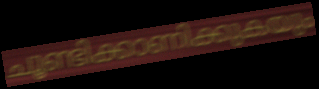
ചൂണ്ടിക്കാണിക്കുകയും